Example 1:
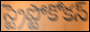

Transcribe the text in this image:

స్ట్రెప్టోకోకస్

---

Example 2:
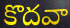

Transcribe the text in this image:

కొదవా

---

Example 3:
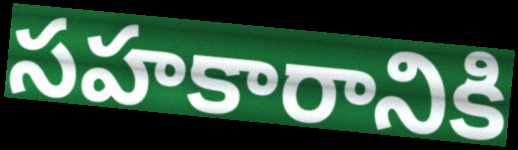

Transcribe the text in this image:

సహకారానికి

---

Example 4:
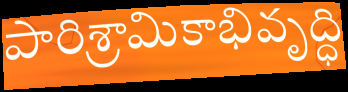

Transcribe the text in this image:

పారిశ్రామికాభివృద్ధి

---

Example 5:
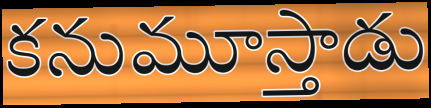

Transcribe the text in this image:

కనుమూస్తాడు